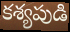
కశ్యపుడి